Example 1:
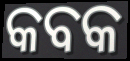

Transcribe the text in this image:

କବକ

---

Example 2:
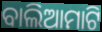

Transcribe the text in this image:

ବାଲିଆମାଟି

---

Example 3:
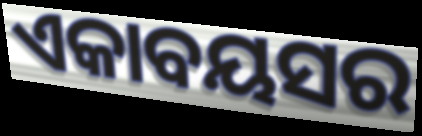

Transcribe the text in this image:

ଏକାବୟସର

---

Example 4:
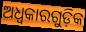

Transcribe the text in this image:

ଅଧ୍ବକାରଗୁଡ଼ିକ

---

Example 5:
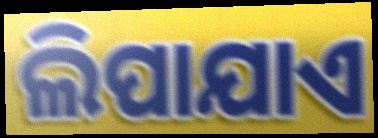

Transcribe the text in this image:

ଲିପାଯାଏ